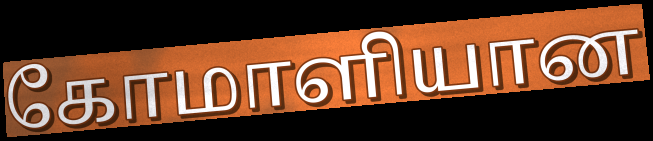
கோமாளியான